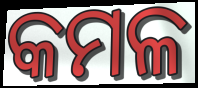
କମଳ